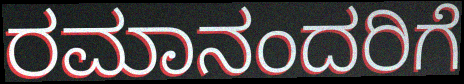
ರಮಾನಂದರಿಗೆ